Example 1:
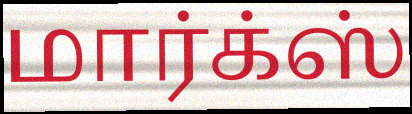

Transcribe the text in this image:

மார்க்ஸ்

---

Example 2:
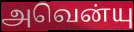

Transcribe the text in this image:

அவென்யு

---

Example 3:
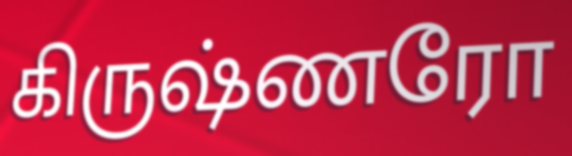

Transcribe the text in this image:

கிருஷ்ணரோ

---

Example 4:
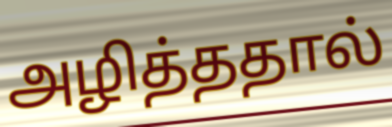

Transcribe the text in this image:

அழித்ததால்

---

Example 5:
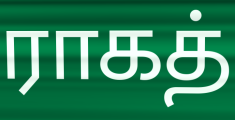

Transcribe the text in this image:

ராகத்